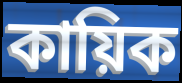
কায়িক